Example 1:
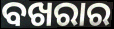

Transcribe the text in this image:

ବଖରାର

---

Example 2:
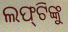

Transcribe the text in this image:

ଲଫ୍‌ଟିଙ୍କୁ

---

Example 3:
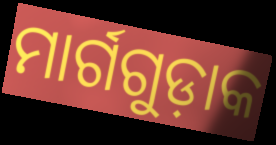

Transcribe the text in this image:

ମାର୍ଗଗୁଡ଼ାକ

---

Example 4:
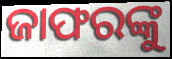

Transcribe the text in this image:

ଜାଫରଙ୍କୁ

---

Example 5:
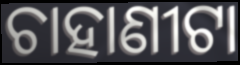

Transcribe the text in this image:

ଚାହାଣୀଟା